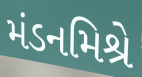
મંડનમિશ્રે